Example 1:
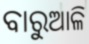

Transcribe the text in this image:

ବାରୁଆଳି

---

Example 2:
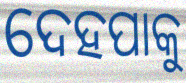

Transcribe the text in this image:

ଦେହପାକୁ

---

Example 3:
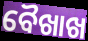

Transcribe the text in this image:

ବୈଖାଖ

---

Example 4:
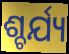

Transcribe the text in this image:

ଶ୍ଚର୍ଯ୍ୟ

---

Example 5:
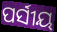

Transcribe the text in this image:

ପର୍ସୀୟ